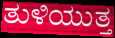
ತುಳಿಯುತ್ತ